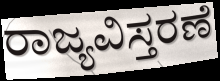
ರಾಜ್ಯವಿಸ್ತರಣೆ